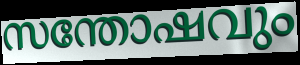
സന്തോഷവും